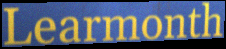
Learmonth